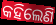
କହିଲେଣି